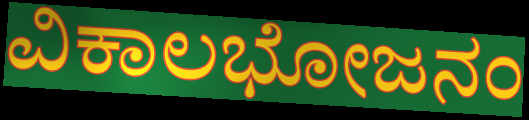
ವಿಕಾಲಭೋಜನಂ